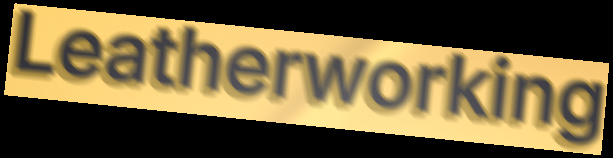
Leatherworking